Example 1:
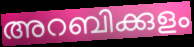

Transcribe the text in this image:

അറബിക്കുളം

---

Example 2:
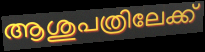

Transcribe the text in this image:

ആശുപത്രിലേക്ക്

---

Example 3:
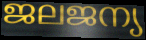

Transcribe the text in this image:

ജലജന്യ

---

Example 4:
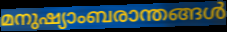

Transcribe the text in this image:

മനുഷ്യാംബരാന്തങ്ങൾ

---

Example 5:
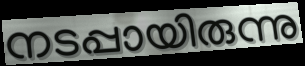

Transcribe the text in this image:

നടപ്പായിരുന്നു